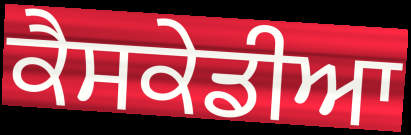
ਕੈਸਕੇਡੀਆ